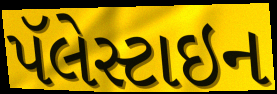
પૅલેસ્ટાઇન